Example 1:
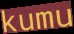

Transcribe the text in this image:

kumu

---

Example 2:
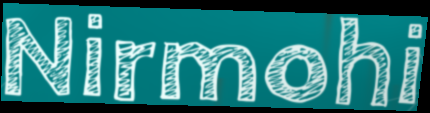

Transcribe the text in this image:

Nirmohi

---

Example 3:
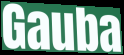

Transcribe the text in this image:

Gauba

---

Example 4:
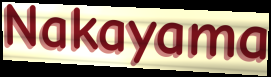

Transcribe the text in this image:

Nakayama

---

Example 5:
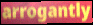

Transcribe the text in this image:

arrogantly